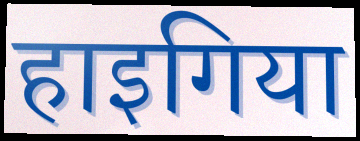
हाइगिया